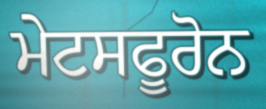
ਮੇਟਸਫੂਰੋਨ